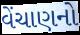
વેંચાણનો